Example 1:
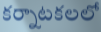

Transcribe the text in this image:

కర్నాటకలలో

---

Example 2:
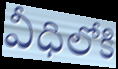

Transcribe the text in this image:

వీధిలోకి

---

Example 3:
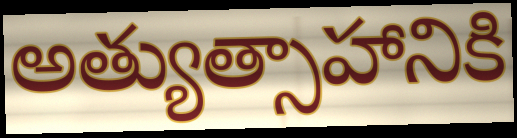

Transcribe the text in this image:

అత్యుత్సాహానికి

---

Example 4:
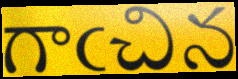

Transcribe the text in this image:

గాఁచిన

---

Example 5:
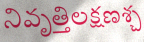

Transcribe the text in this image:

నివృత్తిలక్షణశ్చ